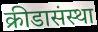
क्रीडासंस्था